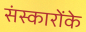
संस्कारोंके